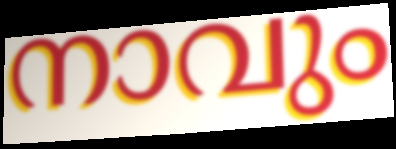
നാവും